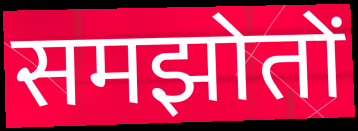
समझोतों